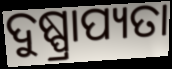
ଦୁଷ୍ପ୍ରାପ୍ୟତା